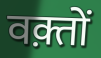
वक़्तों